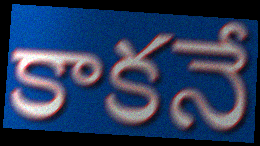
కాకనే